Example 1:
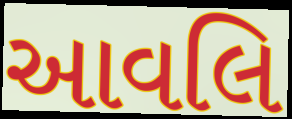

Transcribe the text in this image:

આવલિ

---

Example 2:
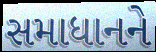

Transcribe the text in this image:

સમાધાનને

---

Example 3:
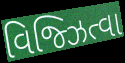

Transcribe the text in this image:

વિજ્ઝિત્વા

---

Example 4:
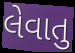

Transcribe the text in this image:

લેવાતુ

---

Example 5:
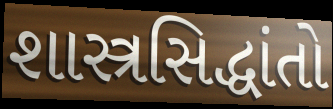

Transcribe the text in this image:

શાસ્ત્રસિદ્ધાંતો